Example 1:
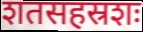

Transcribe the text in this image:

शतसहस्रशः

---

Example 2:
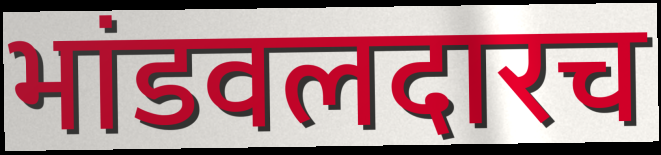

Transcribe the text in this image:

भांडवलदारच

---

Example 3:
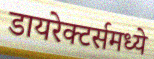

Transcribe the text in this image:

डायरेक्टर्समध्ये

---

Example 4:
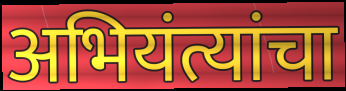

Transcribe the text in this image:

अभियंत्यांचा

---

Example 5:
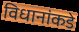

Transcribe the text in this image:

विधानांकडे